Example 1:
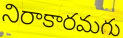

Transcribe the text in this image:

నిరాకారమగు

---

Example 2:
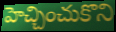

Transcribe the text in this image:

హెచ్చించుకొని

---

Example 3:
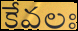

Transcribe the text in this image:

కేవలః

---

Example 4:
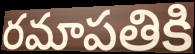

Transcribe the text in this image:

రమాపతికి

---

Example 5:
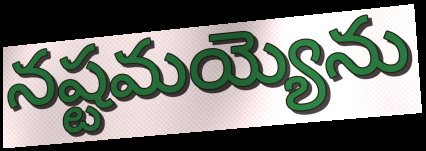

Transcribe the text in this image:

నష్టమయ్యెను